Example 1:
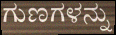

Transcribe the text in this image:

ಗುಣಗಳನ್ನು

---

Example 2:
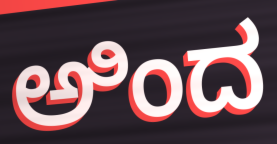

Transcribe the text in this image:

ಅಿಂದ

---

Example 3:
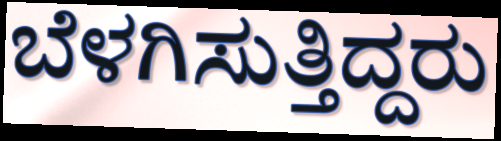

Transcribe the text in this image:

ಬೆಳಗಿಸುತ್ತಿದ್ದರು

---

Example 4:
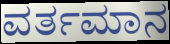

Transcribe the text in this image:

ವರ್ತಮಾನ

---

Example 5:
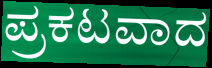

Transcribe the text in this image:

ಪ್ರಕಟವಾದ